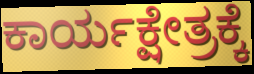
ಕಾರ್ಯಕ್ಷೇತ್ರಕ್ಕೆ